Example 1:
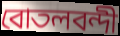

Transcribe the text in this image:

বোতলবন্দী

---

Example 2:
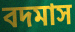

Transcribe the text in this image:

বদমাস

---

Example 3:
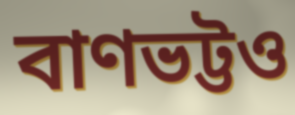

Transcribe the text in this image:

বাণভট্টও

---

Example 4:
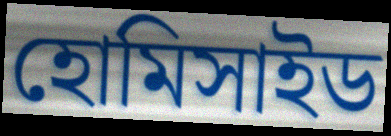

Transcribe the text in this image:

হোমিসাইড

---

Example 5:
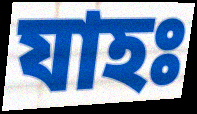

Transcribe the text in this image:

যাহঃ